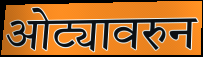
ओट्यावरुन